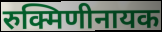
रुक्मिणीनायक